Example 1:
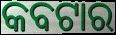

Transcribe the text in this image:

କବଟାର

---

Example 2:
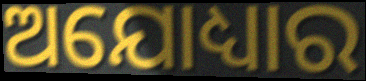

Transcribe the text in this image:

ଅଯୋଧ୍ୟାର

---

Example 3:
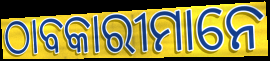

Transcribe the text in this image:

ଠାବକାରୀମାନେ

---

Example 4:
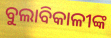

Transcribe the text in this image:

ବୁଲାବିକାଳୀଙ୍କ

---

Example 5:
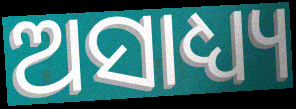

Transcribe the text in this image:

ଅସାଧ୍ୟ୍ୟ